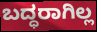
ಬದ್ಧರಾಗಿಲ್ಲ